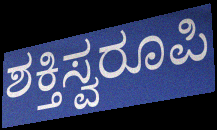
ಶಕ್ತಿಸ್ವರೂಪಿ